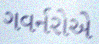
ગવર્નરોએ